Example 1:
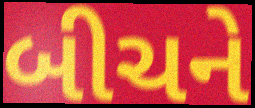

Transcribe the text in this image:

બીચને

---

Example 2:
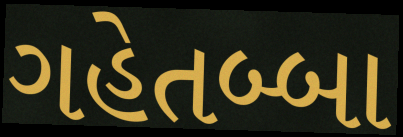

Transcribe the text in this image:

ગહેતબ્બા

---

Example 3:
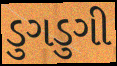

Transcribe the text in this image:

ડુગડુગી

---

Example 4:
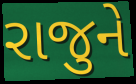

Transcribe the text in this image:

રાજુને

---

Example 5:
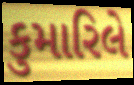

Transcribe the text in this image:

કુમારિલે